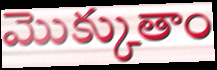
మొక్కుతాం